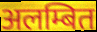
अलम्बित